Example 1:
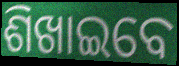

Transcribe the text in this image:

ଶିଖାଇବେ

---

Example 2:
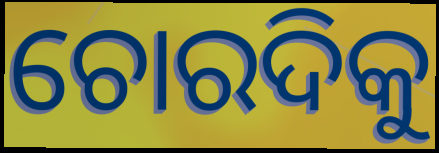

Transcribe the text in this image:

ଚୋରଦିକୁ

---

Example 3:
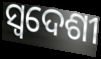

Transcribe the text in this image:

ସ୍ୱଦେଶୀ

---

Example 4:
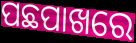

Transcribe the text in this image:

ପଛପାଖରେ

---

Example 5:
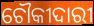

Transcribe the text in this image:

ଚୌକୀଦାରୀ